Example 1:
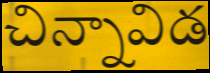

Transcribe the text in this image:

చిన్నావిడ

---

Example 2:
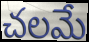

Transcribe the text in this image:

చలమే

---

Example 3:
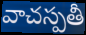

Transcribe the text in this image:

వాచస్పతీ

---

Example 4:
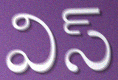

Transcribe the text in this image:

విస్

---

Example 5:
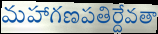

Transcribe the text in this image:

మహాగణపతిర్దేవతా